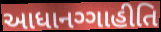
આધાનગ્ગાહીતિ